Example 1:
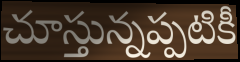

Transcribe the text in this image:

చూస్తున్నప్పటికీ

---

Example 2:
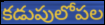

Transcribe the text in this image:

కడుపులోపల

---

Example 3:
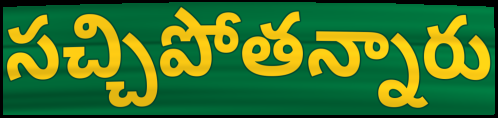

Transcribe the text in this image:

సచ్చిపోతన్నారు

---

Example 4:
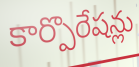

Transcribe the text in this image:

కార్పొరేషన్లు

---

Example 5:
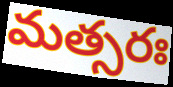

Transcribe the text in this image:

మత్సరః